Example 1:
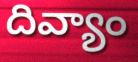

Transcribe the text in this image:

దివ్యాం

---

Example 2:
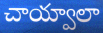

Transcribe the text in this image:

చాయ్వాలా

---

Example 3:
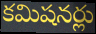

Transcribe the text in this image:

కమిషనర్లు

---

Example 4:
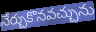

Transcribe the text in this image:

నేర్చుకొనవచ్చును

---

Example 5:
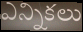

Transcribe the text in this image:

ఎన్నికలు